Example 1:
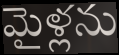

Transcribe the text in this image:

మైళ్లను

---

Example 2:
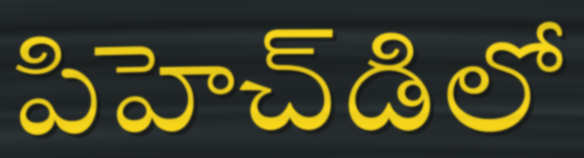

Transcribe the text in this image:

పిహెచ్‌డిలో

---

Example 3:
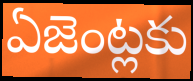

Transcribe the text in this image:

ఏజెంట్లకు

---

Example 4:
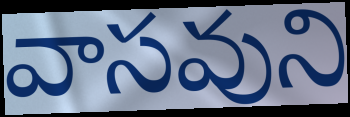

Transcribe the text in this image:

వాసవుని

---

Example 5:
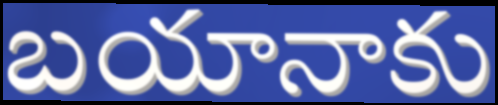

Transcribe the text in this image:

బయానాకు